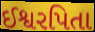
ઈશ્વરપિતા